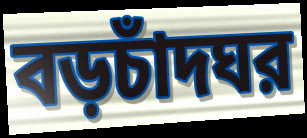
বড়চাঁদঘর